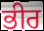
ਭੀਰ